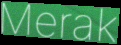
Merak